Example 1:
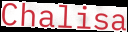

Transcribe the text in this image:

Chalisa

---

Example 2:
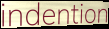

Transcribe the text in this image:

indention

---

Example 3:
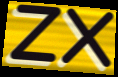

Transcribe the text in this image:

ZX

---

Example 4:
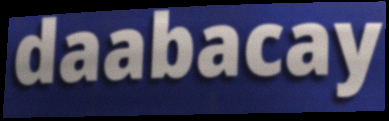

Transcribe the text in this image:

daabacay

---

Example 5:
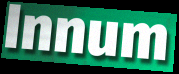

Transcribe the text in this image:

Innum